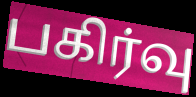
பகிர்வு